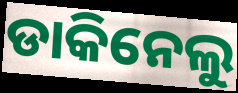
ଡାକିନେଲୁ